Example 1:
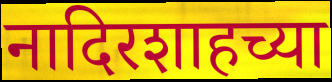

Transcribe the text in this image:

नादिरशाहच्या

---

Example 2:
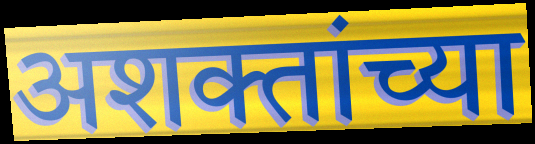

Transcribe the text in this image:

अशक्तांच्या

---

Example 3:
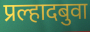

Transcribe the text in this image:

प्रल्हादबुवा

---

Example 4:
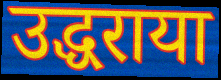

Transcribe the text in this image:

उद्धराया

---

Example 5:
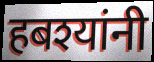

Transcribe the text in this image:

हबश्यांनी